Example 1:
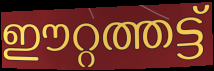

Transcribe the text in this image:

ഈറ്റത്തട്ട്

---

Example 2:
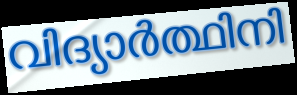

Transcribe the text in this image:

വിദ്യാർത്ഥിനി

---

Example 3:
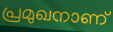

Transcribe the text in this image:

പ്രമുഖനാണ്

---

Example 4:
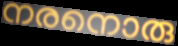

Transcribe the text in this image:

നരനൊരു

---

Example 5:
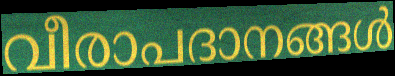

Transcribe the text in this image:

വീരാപദാനങ്ങൾ